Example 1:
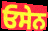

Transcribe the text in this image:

ਓਸੇਨ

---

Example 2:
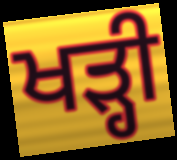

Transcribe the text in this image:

ਖੜ੍ਹੀ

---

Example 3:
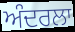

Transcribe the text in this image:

ਅੰਦਰਲਾ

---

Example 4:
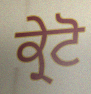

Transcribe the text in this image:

ਕ੍ਰੇਟੋ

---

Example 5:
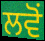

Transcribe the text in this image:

ਲਵੋਂ